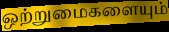
ஒற்றுமைகளையும்